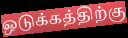
ஒடுக்கத்திற்கு